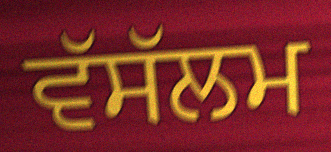
ਵੱਸੱਲਮ